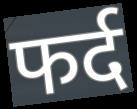
फर्द